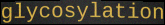
glycosylation